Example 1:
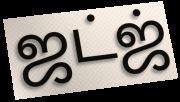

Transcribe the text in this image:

ஜட்ஜ்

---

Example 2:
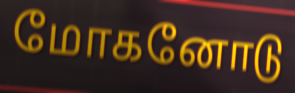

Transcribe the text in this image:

மோகனோடு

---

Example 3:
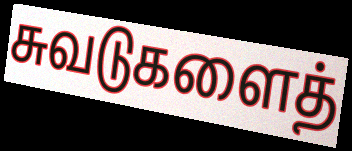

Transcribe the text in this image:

சுவடுகளைத்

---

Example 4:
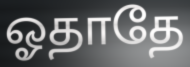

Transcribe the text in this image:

ஓதாதே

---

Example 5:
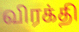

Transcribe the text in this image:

விரக்தி